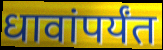
धावांपर्यंत